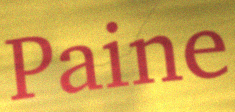
Paine